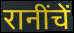
रानींचें